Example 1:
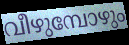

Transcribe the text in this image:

വീഴുമ്പോഴും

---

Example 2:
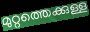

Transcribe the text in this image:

മുറ്റത്തെക്കുള്ള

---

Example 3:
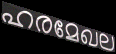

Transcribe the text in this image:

ഹരമേഖല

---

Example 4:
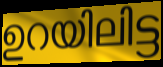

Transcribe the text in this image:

ഉറയിലിട്ട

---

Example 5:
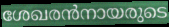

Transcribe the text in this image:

ശേഖരൻനായരുടെ